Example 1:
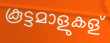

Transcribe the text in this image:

കൂട്ടമാളുകള്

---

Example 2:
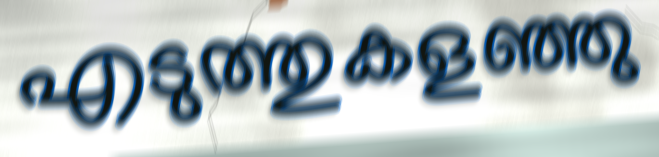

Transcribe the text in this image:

എടുത്തുകളഞ്ഞു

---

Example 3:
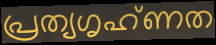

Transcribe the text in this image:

പ്രത്യഗൃഹ്ണത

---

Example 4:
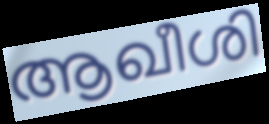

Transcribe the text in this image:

ആഖീശി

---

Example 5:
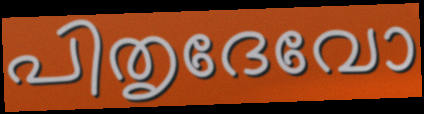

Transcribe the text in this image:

പിതൃദേവോ